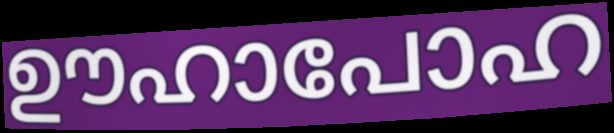
ഊഹാപോഹ